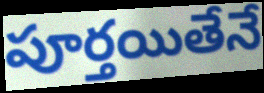
పూర్తయితేనే